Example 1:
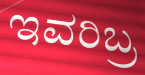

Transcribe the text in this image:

ಇವರಿಬ್ರ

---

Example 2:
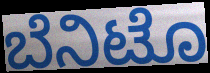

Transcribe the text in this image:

ಬೆನಿಟೊ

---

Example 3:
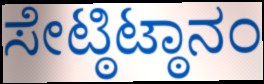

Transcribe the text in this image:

ಸೇಟ್ಠಿಟ್ಠಾನಂ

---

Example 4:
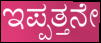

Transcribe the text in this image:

ಇಪ್ಪತ್ತನೇ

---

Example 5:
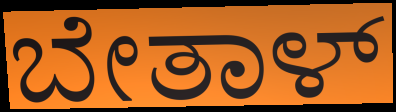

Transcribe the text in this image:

ಬೇತಾಳ್